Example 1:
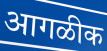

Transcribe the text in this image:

आगळीक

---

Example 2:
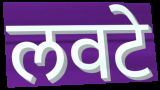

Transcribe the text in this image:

लवटे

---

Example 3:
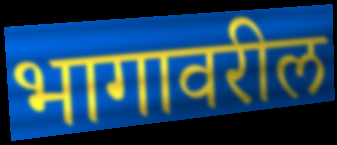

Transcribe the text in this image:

भागावरील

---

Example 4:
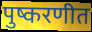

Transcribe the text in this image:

पुष्करणीत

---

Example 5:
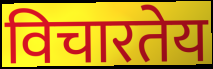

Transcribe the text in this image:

विचारतेय